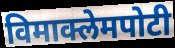
विमाक्लेमपोटी